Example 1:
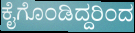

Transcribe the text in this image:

ಕೈಗೊಂಡಿದ್ದರಿಂದ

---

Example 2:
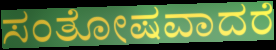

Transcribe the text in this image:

ಸಂತೋಷವಾದರೆ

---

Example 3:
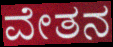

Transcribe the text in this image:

ವೇತನ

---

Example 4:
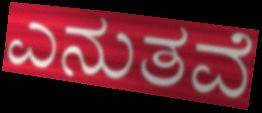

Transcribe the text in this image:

ಎನುತವೆ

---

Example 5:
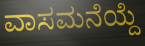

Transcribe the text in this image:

ವಾಸಮನೆಯ್ದೆ